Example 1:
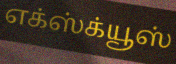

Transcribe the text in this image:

எக்ஸ்க்யூஸ்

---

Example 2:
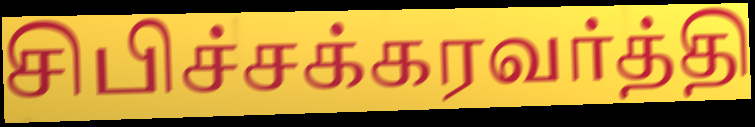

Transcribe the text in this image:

சிபிச்சக்கரவர்த்தி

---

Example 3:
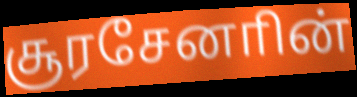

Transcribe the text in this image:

சூரசேனரின்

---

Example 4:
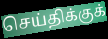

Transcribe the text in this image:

செய்திக்குக்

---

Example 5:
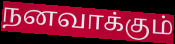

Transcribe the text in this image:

நனவாக்கும்